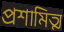
প্রশামিত্ম